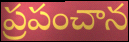
ప్రపంచాన